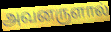
அவனருளால்